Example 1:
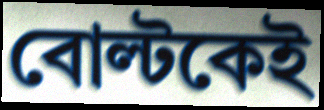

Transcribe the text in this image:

বোল্টকেই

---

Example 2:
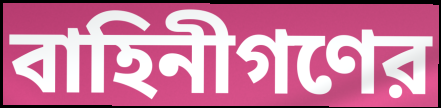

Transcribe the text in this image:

বাহিনীগণের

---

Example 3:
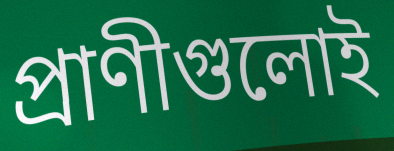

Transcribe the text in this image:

প্রাণীগুলোই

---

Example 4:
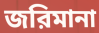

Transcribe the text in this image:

জরিমানা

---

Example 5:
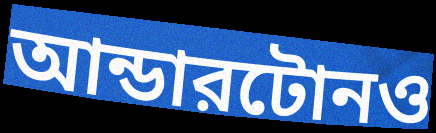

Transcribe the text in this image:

আন্ডারটোনও